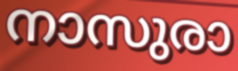
നാസുരാ